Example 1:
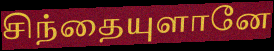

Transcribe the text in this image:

சிந்தையுளானே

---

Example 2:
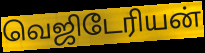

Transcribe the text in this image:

வெஜிடேரியன்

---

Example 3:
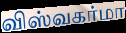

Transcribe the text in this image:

விஸ்வகர்மா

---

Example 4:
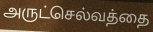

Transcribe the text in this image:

அருட்செல்வத்தை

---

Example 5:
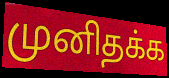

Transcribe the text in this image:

முனிதக்க